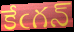
కేఁగన్